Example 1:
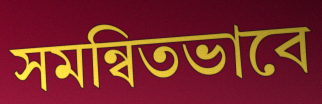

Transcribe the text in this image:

সমন্বিতভাবে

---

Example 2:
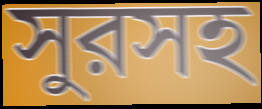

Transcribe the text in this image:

সুরসহ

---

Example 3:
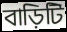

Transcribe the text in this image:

বাড়িটি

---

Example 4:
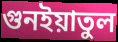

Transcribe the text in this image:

গুনইয়াতুল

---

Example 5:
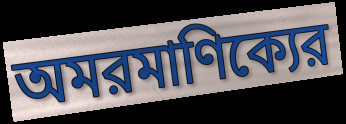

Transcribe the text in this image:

অমরমাণিক্যের